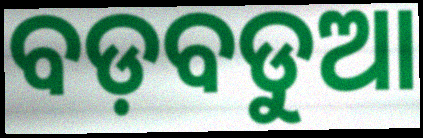
ବଡ଼ବଡୁଆ